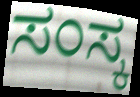
ಸಂಸ್ಕ